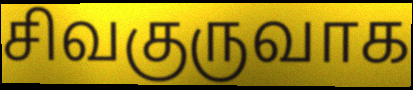
சிவகுருவாக